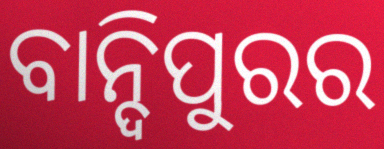
ବାନ୍ଦିପୁରର